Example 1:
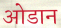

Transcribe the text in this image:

ओडान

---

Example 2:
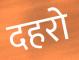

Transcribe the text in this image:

दहरो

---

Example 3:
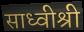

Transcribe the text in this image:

साध्वीश्री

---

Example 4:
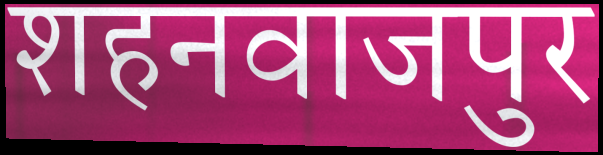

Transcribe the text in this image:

शहनवाजपुर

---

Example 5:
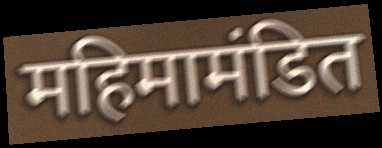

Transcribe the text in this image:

महिमामंडित